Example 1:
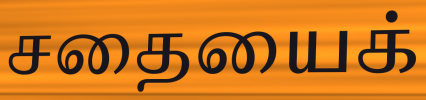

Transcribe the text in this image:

சதையைக்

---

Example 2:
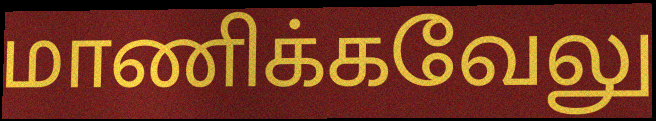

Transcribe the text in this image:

மாணிக்கவேலு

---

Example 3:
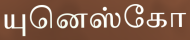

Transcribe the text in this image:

யுனெஸ்கோ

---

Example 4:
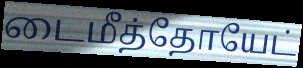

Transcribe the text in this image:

டைமீத்தோயேட்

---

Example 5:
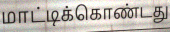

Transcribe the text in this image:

மாட்டிக்கொண்டது